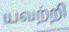
யவற்றி